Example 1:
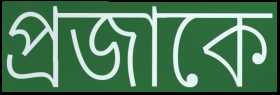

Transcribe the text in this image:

প্রজাকে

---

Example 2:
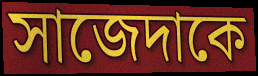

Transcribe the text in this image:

সাজেদাকে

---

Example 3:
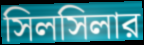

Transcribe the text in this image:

সিলসিলার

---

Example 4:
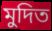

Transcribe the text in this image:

মুদিত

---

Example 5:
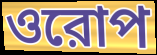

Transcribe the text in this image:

ওরোপ